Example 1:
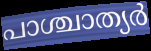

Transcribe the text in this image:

പാശ്ചാത്യർ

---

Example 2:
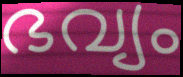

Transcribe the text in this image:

ഭവ്യം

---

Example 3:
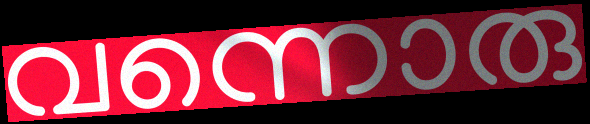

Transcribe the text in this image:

വന്നൊരു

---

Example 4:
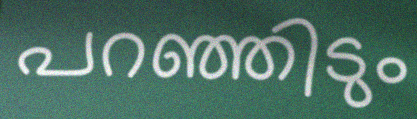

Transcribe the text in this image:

പറഞ്ഞിടും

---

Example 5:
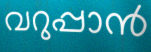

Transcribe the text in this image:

വറുപ്പാൻ